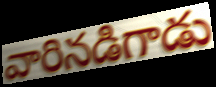
వారినడిగాడు